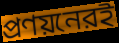
প্রণয়নেরই